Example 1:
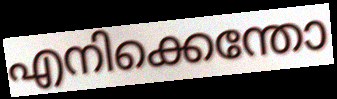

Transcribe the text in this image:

എനിക്കെന്തോ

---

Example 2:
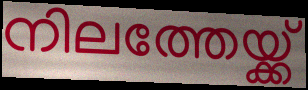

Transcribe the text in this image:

നിലത്തേയ്ക്ക്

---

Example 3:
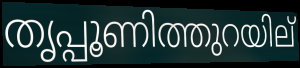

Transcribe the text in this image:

തൃപ്പൂണിത്തുറയില്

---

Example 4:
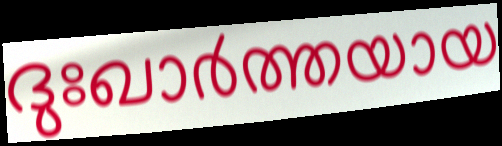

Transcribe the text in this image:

ദുഃഖാർത്തയായ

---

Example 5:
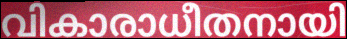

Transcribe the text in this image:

വികാരാധീതനായി